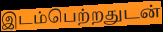
இடம்பெற்றதுடன்